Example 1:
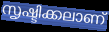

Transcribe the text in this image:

സൃഷ്ടിക്കലാണ്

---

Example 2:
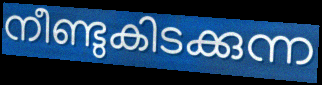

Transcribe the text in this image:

നീണ്ടുകിടക്കുന്ന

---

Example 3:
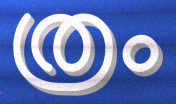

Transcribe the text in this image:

ത്രം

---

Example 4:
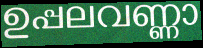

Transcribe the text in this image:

ഉപ്പലവണ്ണാ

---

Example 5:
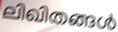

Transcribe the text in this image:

ലിഖിതങ്ങൾ